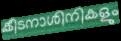
കീടനാശിനികളും